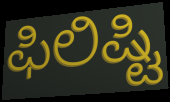
ಫಿಲಿಷ್ಟಿ